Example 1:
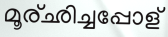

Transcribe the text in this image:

മൂര്ഛിച്ചപ്പോള്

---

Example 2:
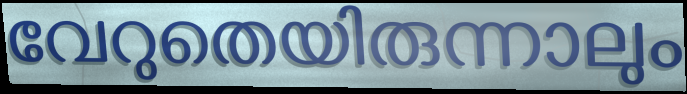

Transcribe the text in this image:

വേറുതെയിരുന്നാലും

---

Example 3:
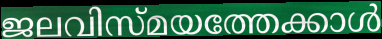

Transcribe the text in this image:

ജലവിസ്മയത്തേക്കാൾ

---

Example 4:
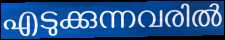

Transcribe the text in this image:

എടുക്കുന്നവരിൽ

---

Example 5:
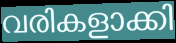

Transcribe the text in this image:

വരികളാക്കി